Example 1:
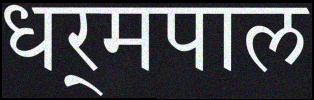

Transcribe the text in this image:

धर्मपाल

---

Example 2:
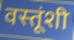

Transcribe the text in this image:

वस्तूंशी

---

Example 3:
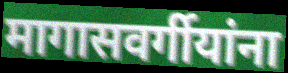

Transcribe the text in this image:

मागासवर्गीयांना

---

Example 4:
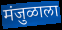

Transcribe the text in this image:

मंजुळाला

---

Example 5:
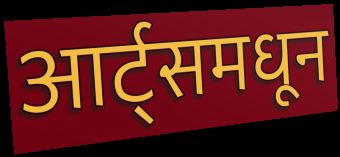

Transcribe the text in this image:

आर्ट्समधून